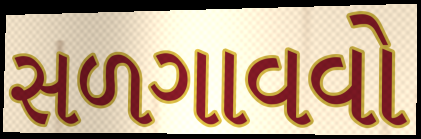
સળગાવવો